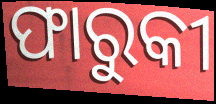
ଫାରୁକୀ